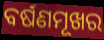
ବର୍ଷଣମୂଖର